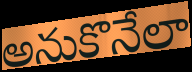
అనుకొనేలా